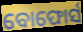
ବୋଫୋର୍ସ